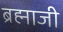
ब्रह्माजी